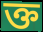
ক্ত